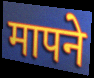
मापने